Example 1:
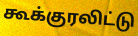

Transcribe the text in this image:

கூக்குரலிட்டு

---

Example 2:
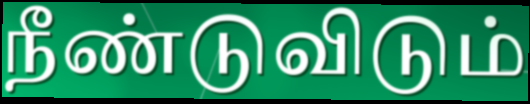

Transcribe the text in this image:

நீண்டுவிடும்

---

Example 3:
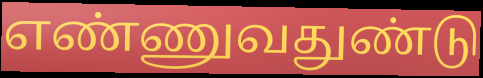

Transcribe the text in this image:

எண்ணுவதுண்டு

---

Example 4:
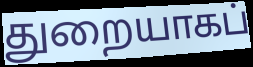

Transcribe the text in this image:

துறையாகப்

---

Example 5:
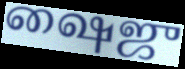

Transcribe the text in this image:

ஷைஜு